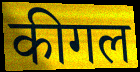
कीगल